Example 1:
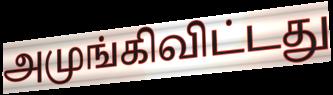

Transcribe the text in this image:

அமுங்கிவிட்டது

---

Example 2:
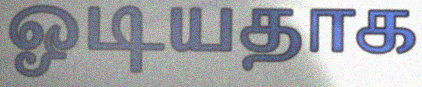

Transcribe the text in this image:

ஓடியதாக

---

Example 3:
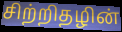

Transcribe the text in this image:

சிற்றிதழின்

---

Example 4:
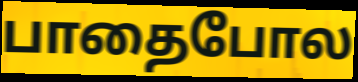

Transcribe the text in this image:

பாதைபோல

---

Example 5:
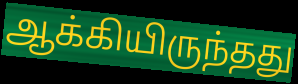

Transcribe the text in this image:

ஆக்கியிருந்தது